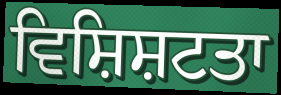
ਵਿਸ਼ਿਸ਼ਟਤਾ